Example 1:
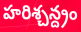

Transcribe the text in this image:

హరిశ్చన్ద్రం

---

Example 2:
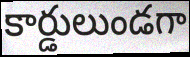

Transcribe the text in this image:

కార్డులుండగా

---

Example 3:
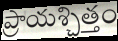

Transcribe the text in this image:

ప్రాయశ్చిత్తం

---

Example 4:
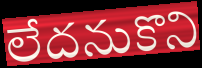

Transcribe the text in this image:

లేదనుకొని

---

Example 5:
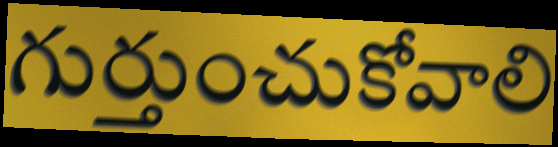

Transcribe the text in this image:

గుర్తుంచుకోవాలి